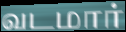
வடமார்